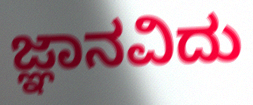
ಜ್ಞಾನವಿದು